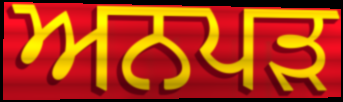
ਅਨਪੜ